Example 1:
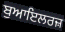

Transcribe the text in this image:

ਬੁਆਇਲਰਜ਼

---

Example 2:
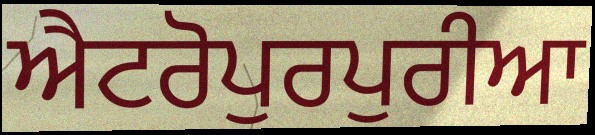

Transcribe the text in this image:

ਐਟਰੋਪੁਰਪੁਰੀਆ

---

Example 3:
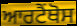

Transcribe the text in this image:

ਆਰਟੈਂਥੋਸ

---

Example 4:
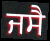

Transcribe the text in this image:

ਜਸੈ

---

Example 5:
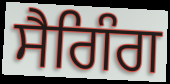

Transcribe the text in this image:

ਸੈਗਿੰਗ